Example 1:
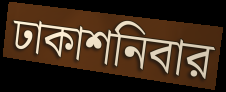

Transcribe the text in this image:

ঢাকাশনিবার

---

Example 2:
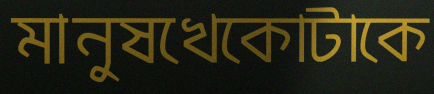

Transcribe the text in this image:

মানুষখেকোটাকে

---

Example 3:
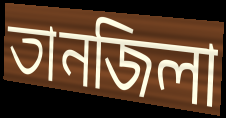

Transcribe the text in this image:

তানজিলা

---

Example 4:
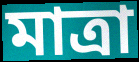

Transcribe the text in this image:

মাত্রা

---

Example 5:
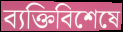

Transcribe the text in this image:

ব্যক্তিবিশেষে